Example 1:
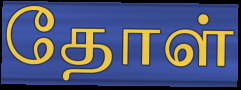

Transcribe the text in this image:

தோள்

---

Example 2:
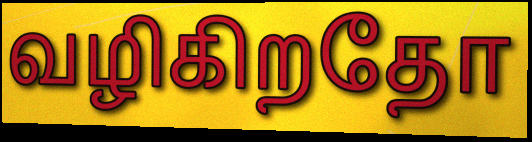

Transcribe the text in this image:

வழிகிறதோ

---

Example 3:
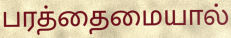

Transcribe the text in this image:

பரத்தைமையால்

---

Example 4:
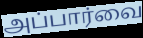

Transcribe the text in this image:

அப்பார்வை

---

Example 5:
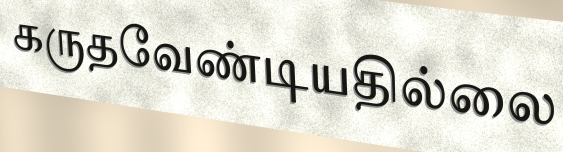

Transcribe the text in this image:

கருதவேண்டியதில்லை